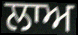
ਲਾਅ